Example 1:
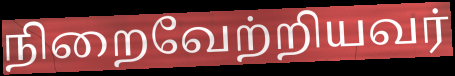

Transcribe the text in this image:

நிறைவேற்றியவர்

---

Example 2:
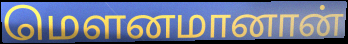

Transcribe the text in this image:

மௌனமானான்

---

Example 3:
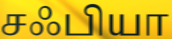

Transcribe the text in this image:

சஃபியா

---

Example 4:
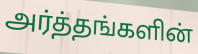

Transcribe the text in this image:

அர்த்தங்களின்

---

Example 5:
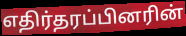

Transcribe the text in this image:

எதிர்தரப்பினரின்